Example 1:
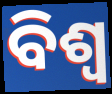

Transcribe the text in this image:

ବିଶ୍ୱ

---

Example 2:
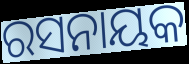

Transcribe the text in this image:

ରସନାୟକ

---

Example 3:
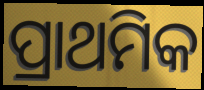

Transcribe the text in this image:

ପ୍ରାଥମିକ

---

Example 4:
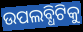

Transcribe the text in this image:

ଉପଲବ୍ଧିଟିକୁ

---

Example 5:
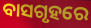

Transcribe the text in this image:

ବାସଗୃହରେ